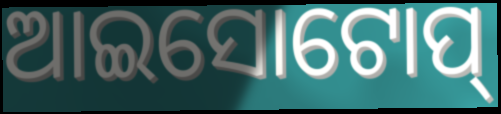
ଆଇସୋଟୋପ୍